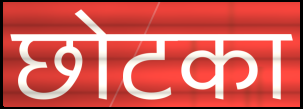
छोटका